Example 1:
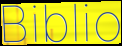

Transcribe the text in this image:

Biblio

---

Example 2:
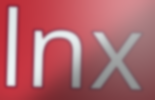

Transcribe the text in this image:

lnx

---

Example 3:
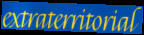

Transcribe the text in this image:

extraterritorial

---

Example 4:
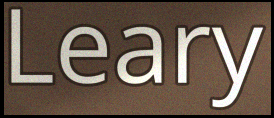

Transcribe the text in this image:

Leary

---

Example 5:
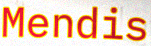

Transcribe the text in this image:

Mendis